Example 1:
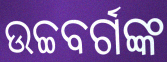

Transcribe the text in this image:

ଉଚ୍ଚବର୍ଗଙ୍କ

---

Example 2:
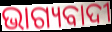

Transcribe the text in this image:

ଭାଗ୍ୟବାଦୀ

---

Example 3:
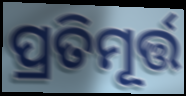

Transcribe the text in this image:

ପ୍ରତିମୂର୍ତ୍ତ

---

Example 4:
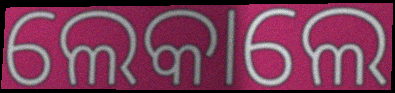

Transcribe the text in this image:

ଲେକାଲେ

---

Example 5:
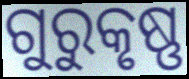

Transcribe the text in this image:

ଗୁରୁକୃଷ୍ଣ